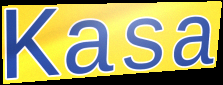
Kasa